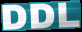
DDL